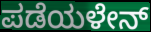
ಪಡೆಯಳೇನ್